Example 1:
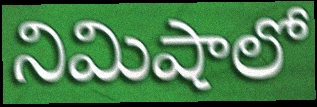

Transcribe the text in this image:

నిమిషాలో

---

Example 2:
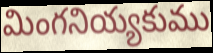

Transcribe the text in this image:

మింగనియ్యకుము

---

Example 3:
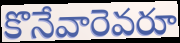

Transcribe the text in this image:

కొనేవారెవరూ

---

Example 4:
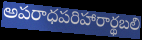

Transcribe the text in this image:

అపరాధపరిహారార్థబలి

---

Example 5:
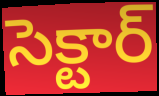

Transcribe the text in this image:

సెక్టార్